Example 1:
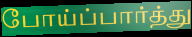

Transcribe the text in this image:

போய்ப்பார்த்து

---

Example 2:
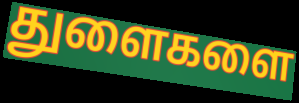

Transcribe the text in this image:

துளைகளை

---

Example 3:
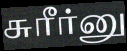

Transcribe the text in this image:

சுரீர்னு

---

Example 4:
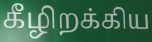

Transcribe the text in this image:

கீழிறக்கிய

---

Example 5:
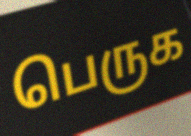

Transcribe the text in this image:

பெருக